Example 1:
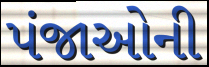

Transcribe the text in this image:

પંજાઓની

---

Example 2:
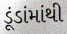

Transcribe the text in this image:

ડૂંડાંમાંથી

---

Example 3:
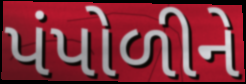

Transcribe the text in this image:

પંપોળીને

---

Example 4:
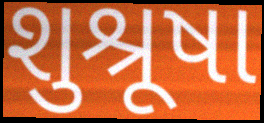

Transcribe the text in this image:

શુશ્રૂષા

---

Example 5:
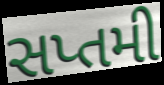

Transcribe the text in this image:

સપ્તમી